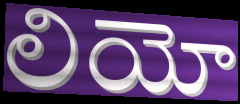
లియో